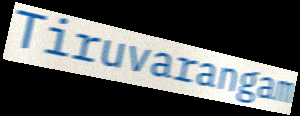
Tiruvarangam